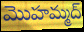
మొహమ్మద్